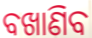
ବଖାଣିବ